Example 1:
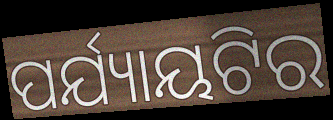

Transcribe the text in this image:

ପର୍ଯ୍ୟାୟଟିର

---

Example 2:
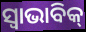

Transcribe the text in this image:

ସ୍ଵାଭାବିକ୍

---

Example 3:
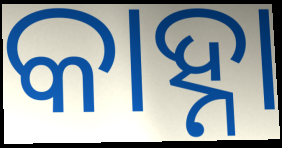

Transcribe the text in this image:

କାହ୍ନା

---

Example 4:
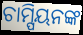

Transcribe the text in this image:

ଚାମ୍ପିୟନଙ୍କ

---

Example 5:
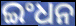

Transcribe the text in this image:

ଇଂଧନ